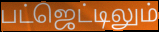
பட்ஜெட்டிலும்